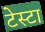
टेस्टा